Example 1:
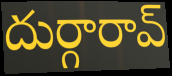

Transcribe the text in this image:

దుర్గారావ్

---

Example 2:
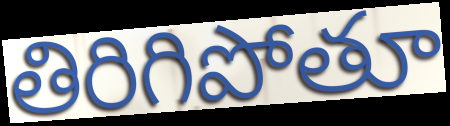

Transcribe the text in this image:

తిరిగిపోతూ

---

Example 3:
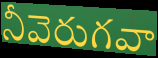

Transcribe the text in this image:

నీవెరుగవా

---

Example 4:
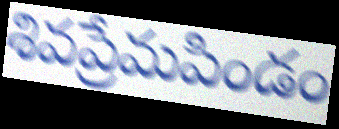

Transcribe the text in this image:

శివప్రేమపిండం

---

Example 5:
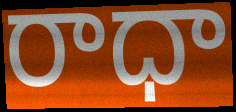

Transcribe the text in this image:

రాధా